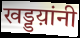
खड्डय़ांनी